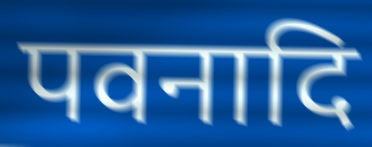
पवनादि